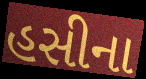
હસીના